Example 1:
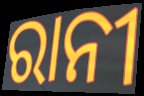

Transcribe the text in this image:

ରାନୀ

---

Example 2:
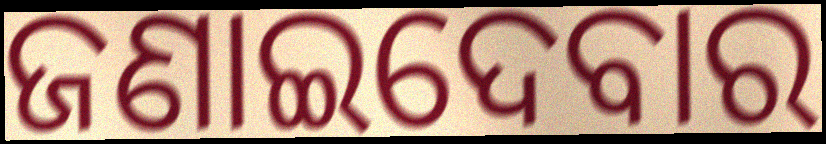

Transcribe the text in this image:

ଜଣାଇଦେବାର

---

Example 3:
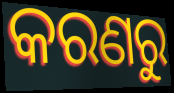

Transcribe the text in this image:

କରଣରୁ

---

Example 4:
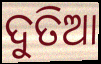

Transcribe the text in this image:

ଦୁତିଆ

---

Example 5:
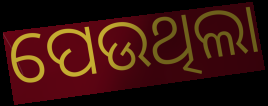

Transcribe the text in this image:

ପେଉଥିଲା